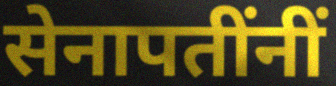
सेनापतींनीं